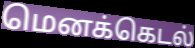
மெனக்கெடல்